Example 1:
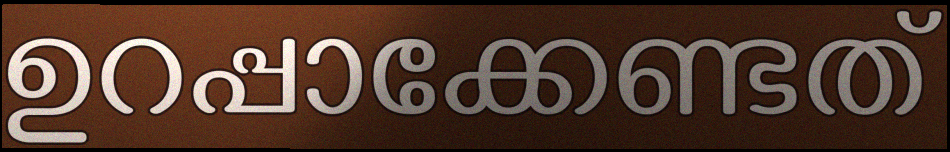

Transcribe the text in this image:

ഉറപ്പാക്കേണ്ടത്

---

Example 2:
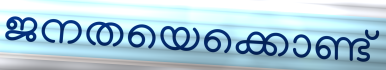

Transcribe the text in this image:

ജനതയെക്കൊണ്ട്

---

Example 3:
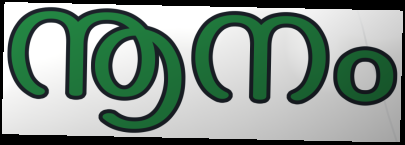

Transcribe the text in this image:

നൂനം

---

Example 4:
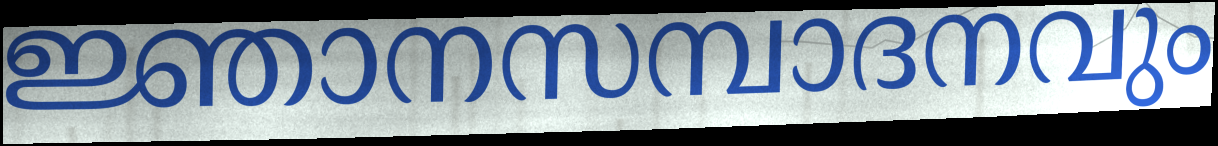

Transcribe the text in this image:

ജ്ഞാനസമ്പാദനവും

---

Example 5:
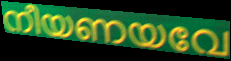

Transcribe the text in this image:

നീയണയവേ